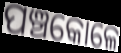
ପଞ୍ଚକୋଳେ